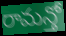
రామన్తో